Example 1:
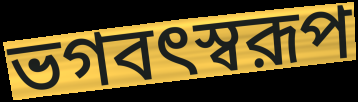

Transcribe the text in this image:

ভগবৎস্বরূপ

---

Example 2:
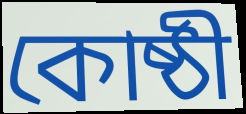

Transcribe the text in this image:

কোষ্ঠী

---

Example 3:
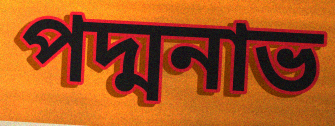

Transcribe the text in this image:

পদ্মনাভ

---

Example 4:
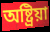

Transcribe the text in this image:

অষ্ট্রিয়া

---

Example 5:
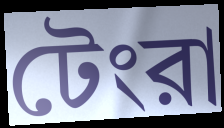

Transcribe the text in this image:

টেংরা